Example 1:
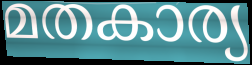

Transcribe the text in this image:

മതകാര്യ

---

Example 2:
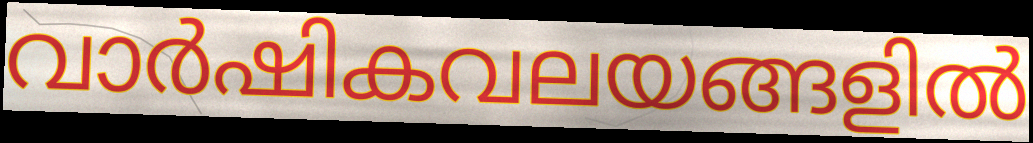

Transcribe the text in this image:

വാർഷികവലയങ്ങളിൽ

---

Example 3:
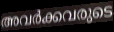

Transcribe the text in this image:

അവർക്കവരുടെ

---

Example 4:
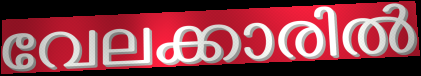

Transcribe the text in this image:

വേലക്കാരിൽ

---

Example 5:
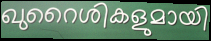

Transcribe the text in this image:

ഖുറൈശികളുമായി